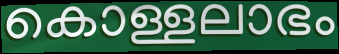
കൊള്ളലാഭം